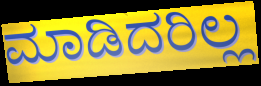
ಮಾಡಿದರಿಲ್ಲ